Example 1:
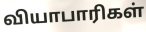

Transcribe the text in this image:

வியாபாரிகள்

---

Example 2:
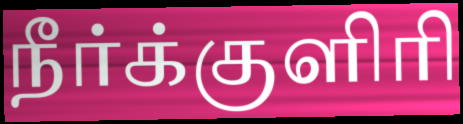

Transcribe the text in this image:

நீர்க்குளிரி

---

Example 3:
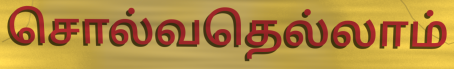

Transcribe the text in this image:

சொல்வதெல்லாம்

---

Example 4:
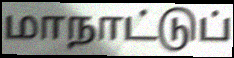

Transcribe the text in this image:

மாநாட்டுப்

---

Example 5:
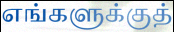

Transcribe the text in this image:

எங்களுக்குத்